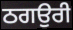
ਠਗਉਰੀ